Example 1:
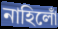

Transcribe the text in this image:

নাহিলোঁ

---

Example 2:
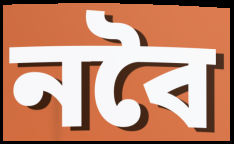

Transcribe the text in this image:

নবৈ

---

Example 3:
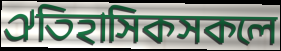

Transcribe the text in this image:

ঐতিহাসিকসকলে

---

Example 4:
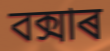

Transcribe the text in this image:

বক্সাৰ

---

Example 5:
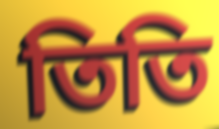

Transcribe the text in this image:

তিতি